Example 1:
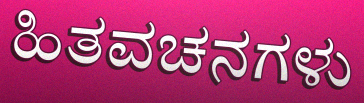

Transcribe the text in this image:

ಹಿತವಚನಗಳು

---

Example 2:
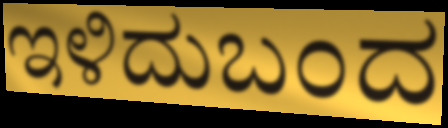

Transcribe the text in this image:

ಇಳಿದುಬಂದ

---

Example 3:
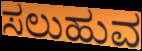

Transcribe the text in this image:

ಸಲುಹುವ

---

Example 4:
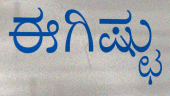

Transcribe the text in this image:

ಈಗಿಷ್ಟು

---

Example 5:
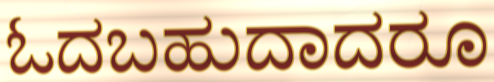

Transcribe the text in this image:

ಓದಬಹುದಾದರೂ